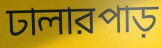
ঢালারপাড়